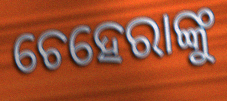
ଚେହେରାଙ୍କୁ